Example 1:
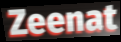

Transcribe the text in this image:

Zeenat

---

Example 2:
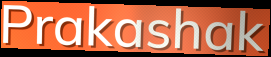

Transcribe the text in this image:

Prakashak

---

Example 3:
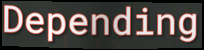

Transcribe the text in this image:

Depending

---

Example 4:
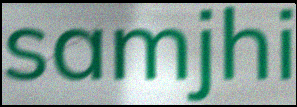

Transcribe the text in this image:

samjhi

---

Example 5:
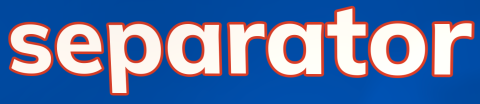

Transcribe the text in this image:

separator